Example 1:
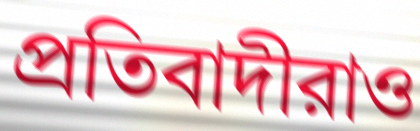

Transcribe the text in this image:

প্রতিবাদীরাও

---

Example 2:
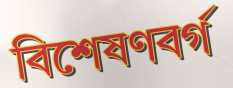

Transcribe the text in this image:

বিশেষণবর্গ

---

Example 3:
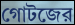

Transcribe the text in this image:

গোটজের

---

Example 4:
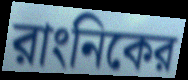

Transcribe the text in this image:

রাংনিকের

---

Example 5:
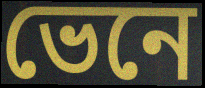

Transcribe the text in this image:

ভেনে